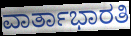
ವಾರ್ತಾಭಾರತಿ